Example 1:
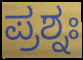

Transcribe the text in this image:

ಪ್ರಶ್ನಃ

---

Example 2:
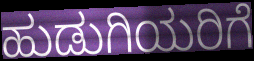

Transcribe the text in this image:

ಹುಡುಗಿಯರಿಗೆ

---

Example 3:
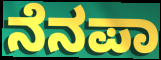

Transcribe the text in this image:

ನೆನಪಾ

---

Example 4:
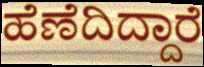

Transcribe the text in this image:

ಹೆಣೆದಿದ್ದಾರೆ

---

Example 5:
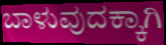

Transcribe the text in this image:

ಬಾಳುವುದಕ್ಕಾಗಿ